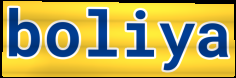
boliya